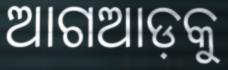
ଆଗଆଡ଼କୁ